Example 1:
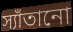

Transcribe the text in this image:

স্যাঁতানো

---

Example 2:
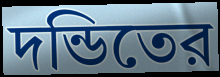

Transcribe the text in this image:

দন্ডিতের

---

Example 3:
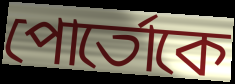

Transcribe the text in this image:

পোর্তোকে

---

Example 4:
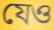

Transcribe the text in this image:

যেও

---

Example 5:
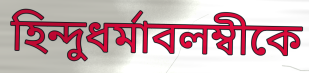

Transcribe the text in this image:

হিন্দুধর্মাবলম্বীকে